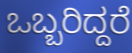
ಒಬ್ಬರಿದ್ದರೆ